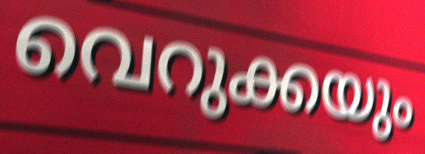
വെറുക്കയും